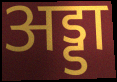
अड्डा